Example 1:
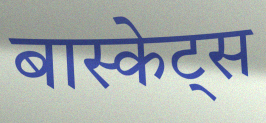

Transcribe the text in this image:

बास्केट्स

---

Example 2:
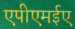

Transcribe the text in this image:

एपीएमईए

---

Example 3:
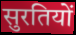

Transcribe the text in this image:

सुरतियों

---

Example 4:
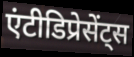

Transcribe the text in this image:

एंटीडिप्रेसेंट्स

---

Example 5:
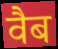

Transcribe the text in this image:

वैब